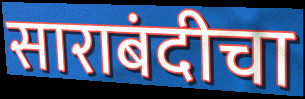
साराबंदीचा